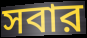
সবার